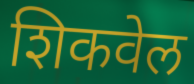
शिकवेल